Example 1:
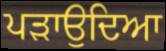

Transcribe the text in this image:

ਪੜਾਉਦਿਆ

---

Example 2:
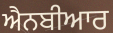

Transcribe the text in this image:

ਐਨਬੀਆਰ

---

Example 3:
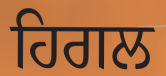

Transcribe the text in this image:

ਹਿਗਲ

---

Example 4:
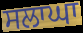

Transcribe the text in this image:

ਸਲਾਘਾ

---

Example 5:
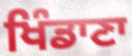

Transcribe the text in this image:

ਖਿੰਡਾਣਾ